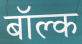
बॉल्क